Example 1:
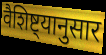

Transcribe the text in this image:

वैशिष्ट्यानुसार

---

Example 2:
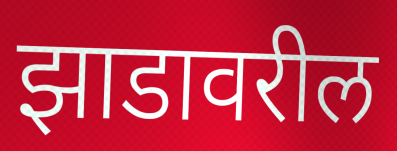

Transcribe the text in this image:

झाडावरील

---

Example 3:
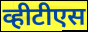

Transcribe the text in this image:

व्हीटीएस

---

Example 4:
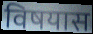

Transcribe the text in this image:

विषयास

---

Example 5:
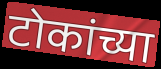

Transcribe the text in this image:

टोकांच्या